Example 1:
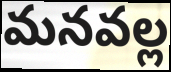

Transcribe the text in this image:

మనవల్ల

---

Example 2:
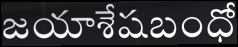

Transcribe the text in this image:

జయాశేషబంధో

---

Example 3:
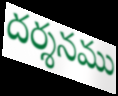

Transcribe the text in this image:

దర్శనము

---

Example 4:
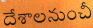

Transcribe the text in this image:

దేశాలనుంచీ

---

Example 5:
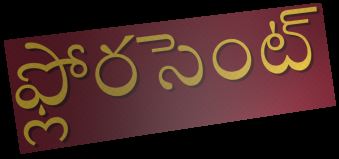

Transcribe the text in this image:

ఫ్లోరసెంట్